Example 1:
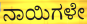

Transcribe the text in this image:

ನಾಯಿಗಳೇ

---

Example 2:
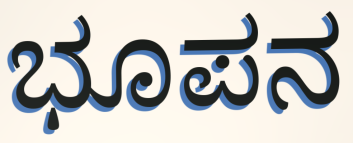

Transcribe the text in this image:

ಭೂಪನ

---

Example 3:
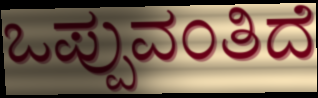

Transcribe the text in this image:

ಒಪ್ಪುವಂತಿದೆ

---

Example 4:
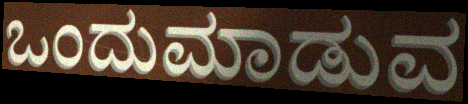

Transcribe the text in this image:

ಒಂದುಮಾಡುವ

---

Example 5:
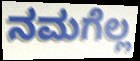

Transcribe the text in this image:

ನಮಗೆಲ್ಲ